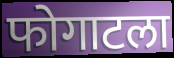
फोगाटला